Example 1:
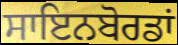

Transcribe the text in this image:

ਸਾਇਨਬੋਰਡਾਂ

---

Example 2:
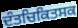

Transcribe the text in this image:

ਦੰਤਚਿਕਿਤਸਕ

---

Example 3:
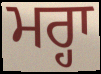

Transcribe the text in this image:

ਮਰ੍ਹਾ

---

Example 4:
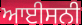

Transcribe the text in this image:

ਆਈਸਨੀ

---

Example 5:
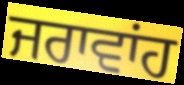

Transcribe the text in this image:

ਜਰਾਵਾਂਹ